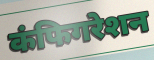
कंफिगरेशन